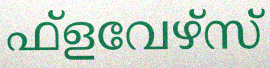
ഫ്ളവേഴ്സ്